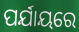
ପର୍ଯାୟରେ